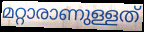
മറ്റാരാണുള്ളത്